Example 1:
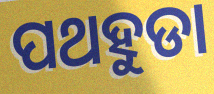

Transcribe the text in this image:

ପଥହୁଡା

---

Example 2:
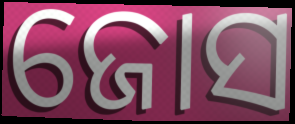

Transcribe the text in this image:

ଜୋସ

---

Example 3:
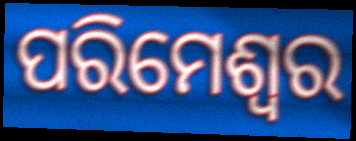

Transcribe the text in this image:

ପରିମେଶ୍ୱର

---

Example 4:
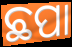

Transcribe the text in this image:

ଛପା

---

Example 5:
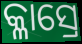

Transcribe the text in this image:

କ୍ଳାସ୍ରେ